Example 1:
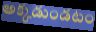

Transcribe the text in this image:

అక్కడుండటం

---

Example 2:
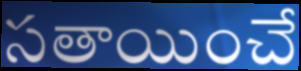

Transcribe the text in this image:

సతాయించే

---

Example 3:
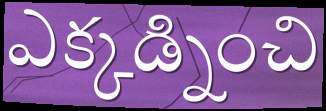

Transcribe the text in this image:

ఎక్కడ్నించి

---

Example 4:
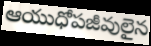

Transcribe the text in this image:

ఆయుధోపజీవులైన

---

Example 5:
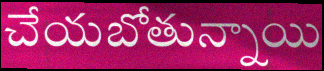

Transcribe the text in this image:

చేయబోతున్నాయి